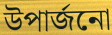
উপাৰ্জনো